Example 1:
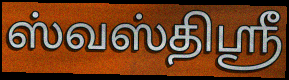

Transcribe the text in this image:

ஸ்வஸ்திஸ்ரீ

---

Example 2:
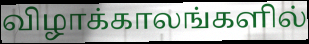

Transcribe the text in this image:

விழாக்காலங்களில்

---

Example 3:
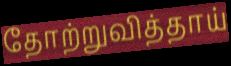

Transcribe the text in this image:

தோற்றுவித்தாய்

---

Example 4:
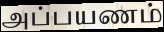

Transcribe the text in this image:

அப்பயணம்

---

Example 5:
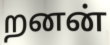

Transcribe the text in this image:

றனன்